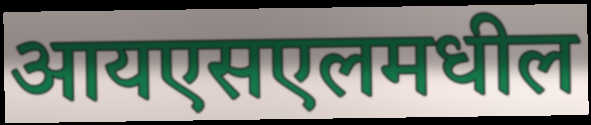
आयएसएलमधील